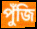
পুঁজি